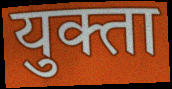
युक्ता